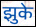
झुके